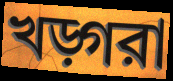
খড়্গরা